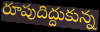
రూపుదిద్దుకున్న